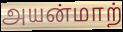
அயன்மாற்